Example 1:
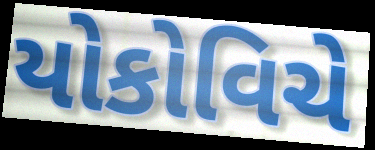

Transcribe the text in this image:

યોકોવિચે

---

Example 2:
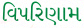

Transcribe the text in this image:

વિપરિણામ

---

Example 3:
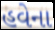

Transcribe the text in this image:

હવેના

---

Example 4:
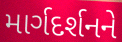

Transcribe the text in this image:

માર્ગદર્શનને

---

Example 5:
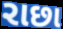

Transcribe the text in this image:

રાછા